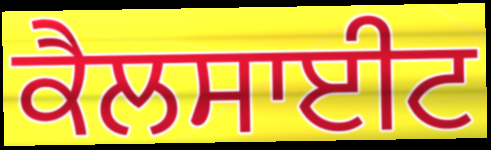
ਕੈਲਸਾਈਟ